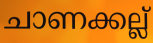
ചാണക്കല്ല്